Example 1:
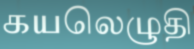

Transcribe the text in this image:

கயலெழுதி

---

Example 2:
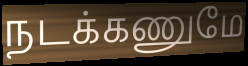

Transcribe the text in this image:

நடக்கணுமே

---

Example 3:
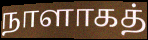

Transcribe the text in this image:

நாளாகத்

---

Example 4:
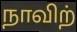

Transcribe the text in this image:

நாவிற்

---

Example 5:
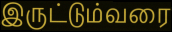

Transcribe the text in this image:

இருட்டும்வரை